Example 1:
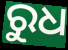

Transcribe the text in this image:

ରୁଧ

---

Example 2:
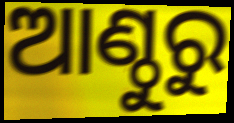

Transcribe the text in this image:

ଆଣ୍ଠୁରୁ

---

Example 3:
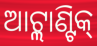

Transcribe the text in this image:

ଆଟ୍ଲାଣ୍ଟିକ୍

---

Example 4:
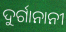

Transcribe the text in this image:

ଦୁର୍ଗାନାନୀ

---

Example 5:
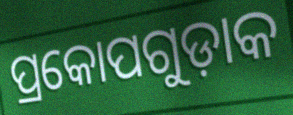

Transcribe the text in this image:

ପ୍ରକୋପଗୁଡ଼ାକ